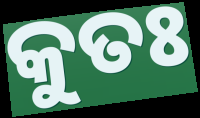
କୁତଃ